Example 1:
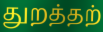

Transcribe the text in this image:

துறத்தற்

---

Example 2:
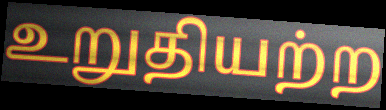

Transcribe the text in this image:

உறுதியற்ற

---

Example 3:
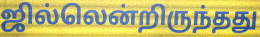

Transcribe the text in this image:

ஜில்லென்றிருந்தது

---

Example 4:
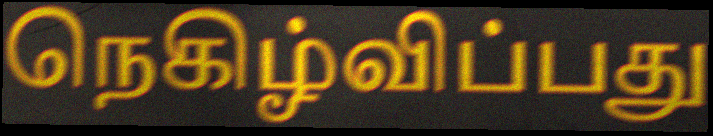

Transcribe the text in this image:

நெகிழ்விப்பது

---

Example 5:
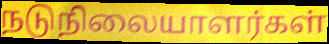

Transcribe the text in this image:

நடுநிலையாளர்கள்